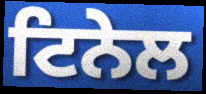
ਟਿਨੇਲ